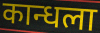
कान्धला